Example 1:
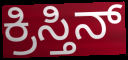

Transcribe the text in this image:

ಕ್ರಿಸ್ತಿನ್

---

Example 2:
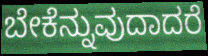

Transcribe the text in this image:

ಬೇಕೆನ್ನುವುದಾದರೆ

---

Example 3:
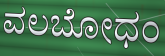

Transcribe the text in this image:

ವಲಬೋಧಂ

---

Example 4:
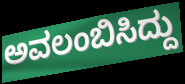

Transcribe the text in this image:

ಅವಲಂಬಿಸಿದ್ದು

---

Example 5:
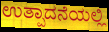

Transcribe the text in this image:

ಉತ್ಪಾದನೆಯಲ್ಲಿ